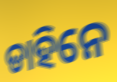
ଡାହିନେ